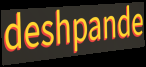
deshpande